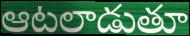
ఆటలాడుతూ